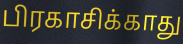
பிரகாசிக்காது